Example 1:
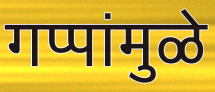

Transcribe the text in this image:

गप्पांमुळे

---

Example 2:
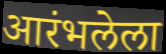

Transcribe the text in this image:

आरंभलेला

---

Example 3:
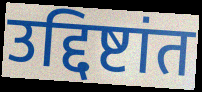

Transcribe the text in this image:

उद्दिष्टांत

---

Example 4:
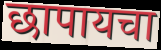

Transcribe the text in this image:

छापायचा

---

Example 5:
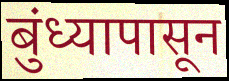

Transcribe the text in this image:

बुंध्यापासून